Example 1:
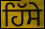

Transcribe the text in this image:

ਹਿੱਸੇ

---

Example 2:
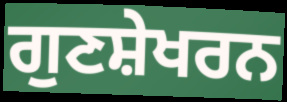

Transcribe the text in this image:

ਗੁਣਸ਼ੇਖਰਨ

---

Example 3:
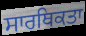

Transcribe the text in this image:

ਸਾਰਥਿਕਤਾ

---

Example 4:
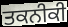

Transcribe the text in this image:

ਤਕਨੀਕੀ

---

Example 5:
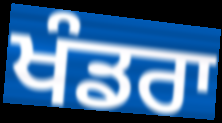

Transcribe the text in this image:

ਖੰਡਰਾ